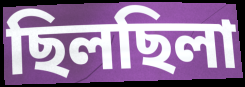
ছিলছিলা